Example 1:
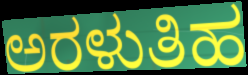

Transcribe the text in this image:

ಅರಳುತಿಹ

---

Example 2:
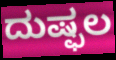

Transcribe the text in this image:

ದುಷ್ಫಲ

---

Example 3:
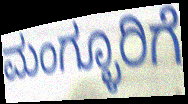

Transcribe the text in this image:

ಮಂಗ್ಳೂರಿಗೆ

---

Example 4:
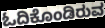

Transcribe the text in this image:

ಓದಿಕೊಂಡಿರುವ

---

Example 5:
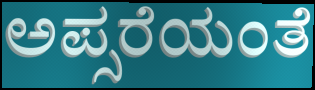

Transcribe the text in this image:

ಅಪ್ಸರೆಯಂತೆ